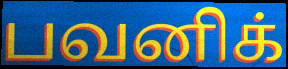
பவனிக்